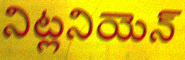
నిట్లనియెన్